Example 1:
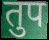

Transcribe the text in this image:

तुप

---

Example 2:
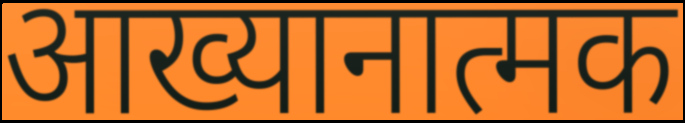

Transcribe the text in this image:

आख्यानात्मक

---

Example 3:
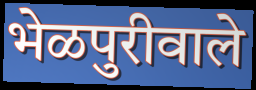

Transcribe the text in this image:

भेळपुरीवाले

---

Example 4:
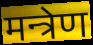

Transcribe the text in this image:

मन्त्रेण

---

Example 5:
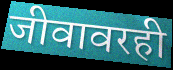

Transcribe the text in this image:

जीवावरही